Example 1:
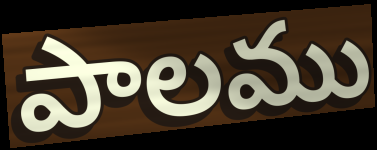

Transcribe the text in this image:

పాలము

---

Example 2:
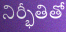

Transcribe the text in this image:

నిర్భీతితో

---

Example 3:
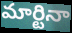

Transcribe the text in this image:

మార్టినా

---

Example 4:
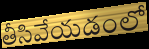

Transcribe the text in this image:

తీసివేయడంలో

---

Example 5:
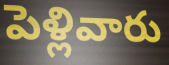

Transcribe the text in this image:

పెళ్లివారు